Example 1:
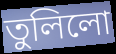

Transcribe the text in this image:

তুলিলো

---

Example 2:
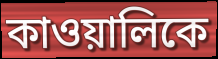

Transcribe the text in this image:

কাওয়ালিকে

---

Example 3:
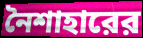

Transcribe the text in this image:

নৈশাহারের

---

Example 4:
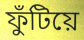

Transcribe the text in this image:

ফুঁটিয়ে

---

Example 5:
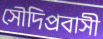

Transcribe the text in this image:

সৌদিপ্রবাসী